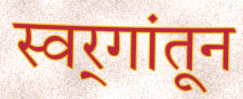
स्वर्गांतून